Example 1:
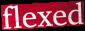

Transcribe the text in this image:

flexed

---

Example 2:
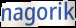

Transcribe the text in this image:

nagorik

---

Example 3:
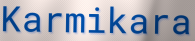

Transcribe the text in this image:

Karmikara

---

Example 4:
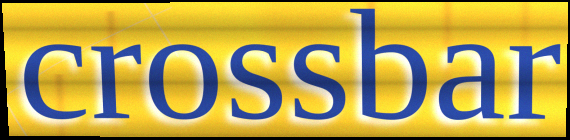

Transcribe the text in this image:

crossbar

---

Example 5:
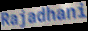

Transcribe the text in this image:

Rajadhani